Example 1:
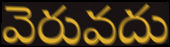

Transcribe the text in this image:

వెరువదు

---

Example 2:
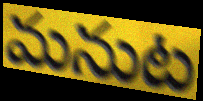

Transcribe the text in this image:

మనుట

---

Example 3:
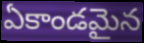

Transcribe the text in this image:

ఏకాండమైన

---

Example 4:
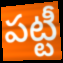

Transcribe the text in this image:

పట్టీ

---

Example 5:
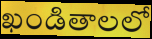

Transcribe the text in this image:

ఖండితాలలో